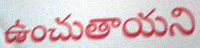
ఉంచుతాయని